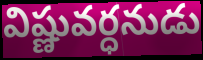
విష్ణువర్ధనుడు